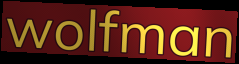
wolfman